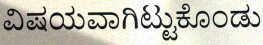
ವಿಷಯವಾಗಿಟ್ಟುಕೊಂಡು